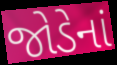
જોડેનાં